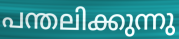
പന്തലിക്കുന്നു